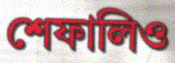
শেফালিও